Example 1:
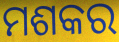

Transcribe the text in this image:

ମଶକର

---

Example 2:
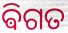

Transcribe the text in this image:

ଵିଗତ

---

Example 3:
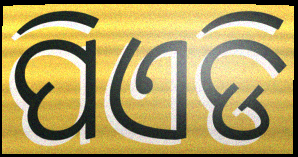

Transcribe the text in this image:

ପିଏଡି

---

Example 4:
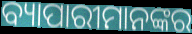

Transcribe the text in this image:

ବ୍ୟାପାରୀମାନଙ୍କର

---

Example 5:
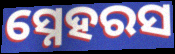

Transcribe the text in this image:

ସ୍ନେହରସ